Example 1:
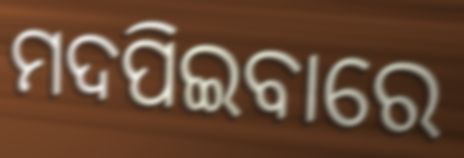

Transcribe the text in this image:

ମଦପିଇବାରେ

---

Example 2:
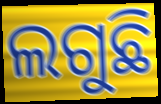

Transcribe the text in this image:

ଲଗୁଛି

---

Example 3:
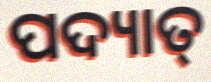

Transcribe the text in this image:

ପଦ୍ୟାତ୍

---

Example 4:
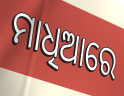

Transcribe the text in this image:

ମାଧିଆରେ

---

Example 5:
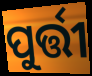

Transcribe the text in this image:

ପୁର୍ତ୍ତୀ